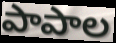
పాపాల